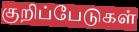
குறிப்பேடுகள்